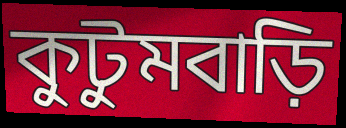
কুটুমবাড়ি